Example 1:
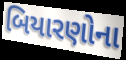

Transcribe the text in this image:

બિયારણોના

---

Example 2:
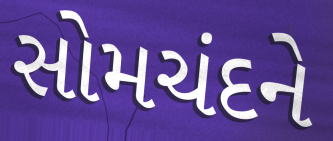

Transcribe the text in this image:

સોમચંદને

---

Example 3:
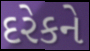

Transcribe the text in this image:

દરેકને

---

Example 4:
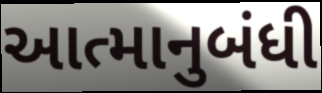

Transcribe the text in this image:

આત્માનુબંધી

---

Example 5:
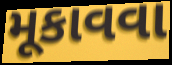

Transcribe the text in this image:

મૂકાવવા